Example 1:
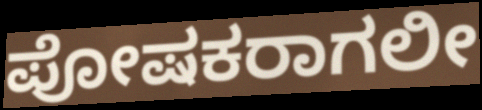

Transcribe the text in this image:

ಪೋಷಕರಾಗಲೀ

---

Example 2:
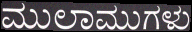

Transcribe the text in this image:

ಮುಲಾಮುಗಳು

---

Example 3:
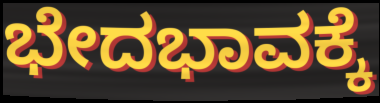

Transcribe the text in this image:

ಭೇದಭಾವಕ್ಕೆ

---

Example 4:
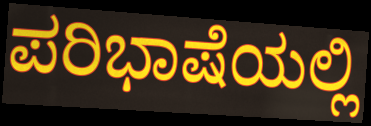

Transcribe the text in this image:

ಪರಿಭಾಷೆಯಲ್ಲಿ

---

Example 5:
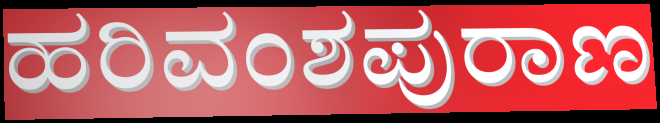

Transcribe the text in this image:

ಹರಿವಂಶಪುರಾಣ